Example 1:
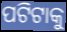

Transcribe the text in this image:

ପଟିଟାକୁ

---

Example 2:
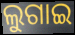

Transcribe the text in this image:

ଲୁଗାଇ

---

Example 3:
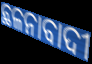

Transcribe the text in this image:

ଛଳନାବାଦୀ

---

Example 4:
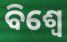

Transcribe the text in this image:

ବିଶ୍ଵେ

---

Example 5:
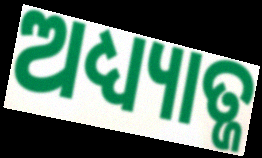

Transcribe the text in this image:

ଅଧ୍ୟ୍ୟାତ୍ଜ